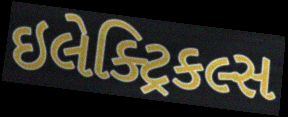
ઇલેક્ટ્રિકલ્સ